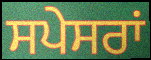
ਸਪੇਸਰਾਂ